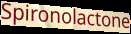
Spironolactone